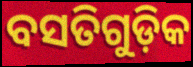
ବସତିଗୁଡ଼ିକ